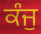
ਕੰਜੁ